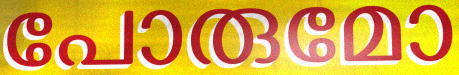
പോരുമോ